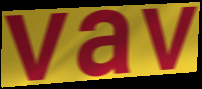
vav